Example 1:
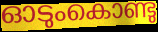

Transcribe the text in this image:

ഓടുംകൊണ്ടു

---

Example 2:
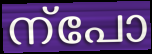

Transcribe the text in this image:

ന്പോ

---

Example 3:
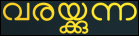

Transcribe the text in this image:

വരയ്ക്കുന്ന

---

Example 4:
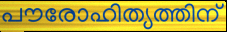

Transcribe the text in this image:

പൗരോഹിത്യത്തിന്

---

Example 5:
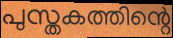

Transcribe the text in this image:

പുസ്തകത്തിന്റെ